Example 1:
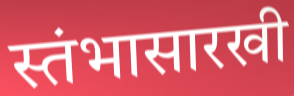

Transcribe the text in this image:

स्तंभासारखी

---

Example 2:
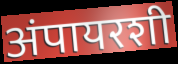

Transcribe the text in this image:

अंपायरशी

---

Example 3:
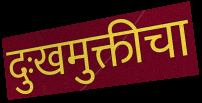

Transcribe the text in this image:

दुःखमुक्तीचा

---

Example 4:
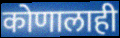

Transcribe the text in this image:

कोणालाही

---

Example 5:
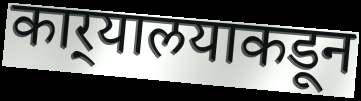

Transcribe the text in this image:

कार्यालयाकडून